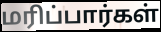
மரிப்பார்கள்